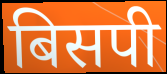
बिसपी